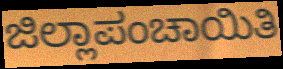
ಜಿಲ್ಲಾಪಂಚಾಯಿತಿ